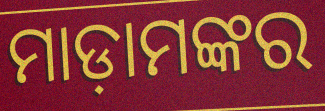
ମାଡ଼ାମଙ୍କର